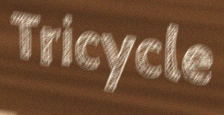
Tricycle